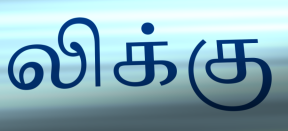
லிக்கு